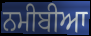
ਨਮੀਬੀਆ